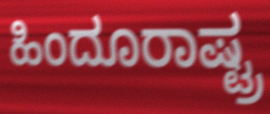
ಹಿಂದೂರಾಷ್ಟ್ರ